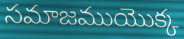
సమాజముయొక్క